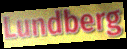
Lundberg